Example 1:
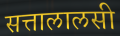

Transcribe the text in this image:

सत्तालालसी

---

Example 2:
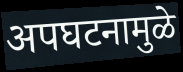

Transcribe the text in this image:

अपघटनामुळे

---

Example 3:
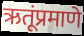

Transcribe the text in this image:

ऋतूंप्रमाणे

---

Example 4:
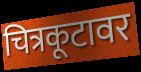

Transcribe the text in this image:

चित्रकूटावर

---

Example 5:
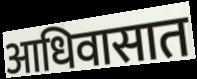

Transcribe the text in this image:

आधिवासात